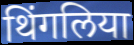
थिंगलिया